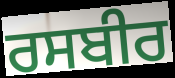
ਰਸਬੀਰ